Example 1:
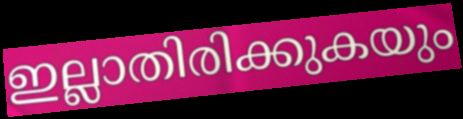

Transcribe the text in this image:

ഇല്ലാതിരിക്കുകയും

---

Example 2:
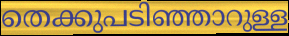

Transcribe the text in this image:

തെക്കുപടിഞ്ഞാറുള്ള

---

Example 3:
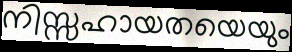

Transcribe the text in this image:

നിസ്സഹായതയെയും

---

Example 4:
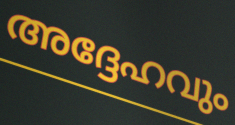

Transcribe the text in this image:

അദ്ദേഹവും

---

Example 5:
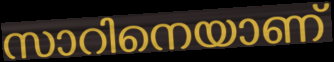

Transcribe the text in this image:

സാറിനെയാണ്